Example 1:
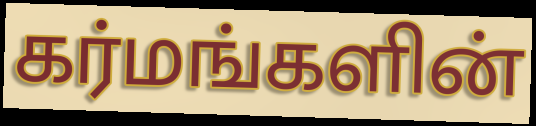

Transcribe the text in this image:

கர்மங்களின்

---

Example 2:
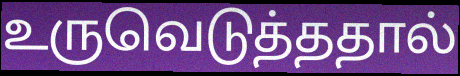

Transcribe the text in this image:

உருவெடுத்ததால்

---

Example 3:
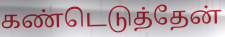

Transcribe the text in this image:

கண்டெடுத்தேன்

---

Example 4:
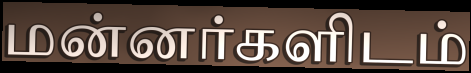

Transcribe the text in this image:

மன்னர்களிடம்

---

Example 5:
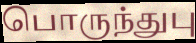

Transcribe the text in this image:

பொருந்துபு